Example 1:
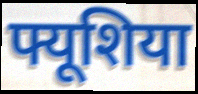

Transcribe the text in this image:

फ्यूशिया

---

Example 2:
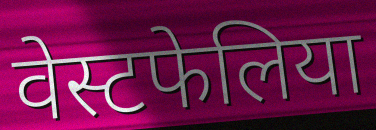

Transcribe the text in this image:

वेस्टफेलिया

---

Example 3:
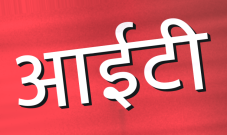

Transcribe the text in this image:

आईटी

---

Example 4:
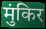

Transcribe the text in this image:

मुंकिर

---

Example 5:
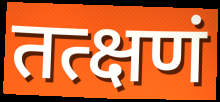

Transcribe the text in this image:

तत्क्षणं